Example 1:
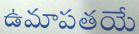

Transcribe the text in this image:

ఉమాపతయే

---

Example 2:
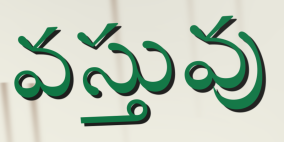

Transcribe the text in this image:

వస్తువు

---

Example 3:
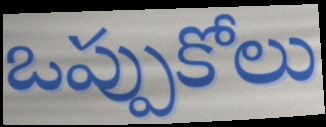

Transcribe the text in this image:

ఒప్పుకోలు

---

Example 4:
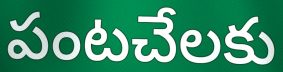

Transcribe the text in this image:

పంటచేలకు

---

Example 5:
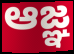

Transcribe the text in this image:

ఆజ్ఞ